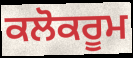
ਕਲੋਕਰੂਮ